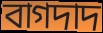
বাগদাদ